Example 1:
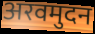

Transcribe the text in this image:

अरवमुदन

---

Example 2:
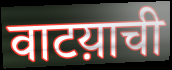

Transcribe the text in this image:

वाटय़ाची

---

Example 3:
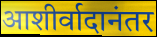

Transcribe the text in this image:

आशीर्वादानंतर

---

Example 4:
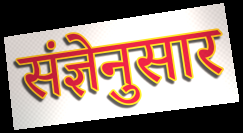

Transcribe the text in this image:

संज्ञेनुसार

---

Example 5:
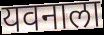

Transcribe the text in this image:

यवनाला